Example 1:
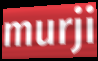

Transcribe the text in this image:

murji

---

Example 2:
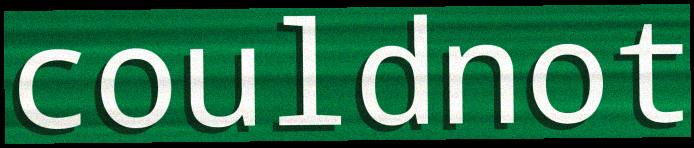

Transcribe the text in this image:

couldnot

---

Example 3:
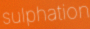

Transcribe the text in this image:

sulphation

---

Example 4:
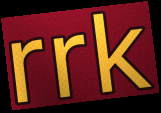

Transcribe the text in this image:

rrk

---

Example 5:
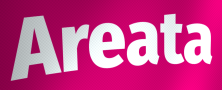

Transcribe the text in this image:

Areata